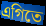
এগিতে